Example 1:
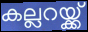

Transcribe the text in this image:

കല്ലറയ്ക്ക്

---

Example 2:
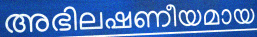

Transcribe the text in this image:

അഭിലഷണീയമായ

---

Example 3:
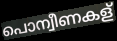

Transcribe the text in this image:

പൊന്വീണകള്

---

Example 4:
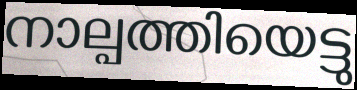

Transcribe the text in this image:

നാല്പത്തിയെട്ടു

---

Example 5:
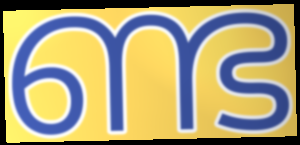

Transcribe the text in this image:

ണ്ട